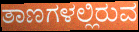
ತಾಣಗಳಲ್ಲಿರುವ